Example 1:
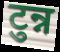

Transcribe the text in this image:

टुन्न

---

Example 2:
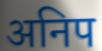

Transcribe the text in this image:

अनिप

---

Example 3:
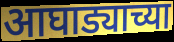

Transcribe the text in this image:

आघाड्याच्या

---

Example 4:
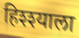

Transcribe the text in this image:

हिश्श्याला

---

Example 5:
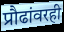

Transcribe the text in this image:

प्रौढांवरही